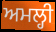
ਅਮਲ੍ਹੀ